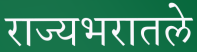
राज्यभरातले